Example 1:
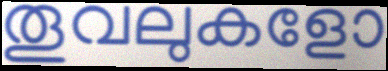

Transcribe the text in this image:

തൂവലുകളോ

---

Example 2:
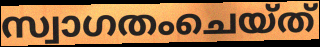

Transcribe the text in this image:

സ്വാഗതംചെയ്ത്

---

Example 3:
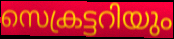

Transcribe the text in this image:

സെക്രട്ടറിയും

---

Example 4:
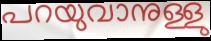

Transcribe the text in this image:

പറയുവാനുള്ളു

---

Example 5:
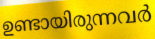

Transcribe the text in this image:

ഉണ്ടായിരുന്നവർ